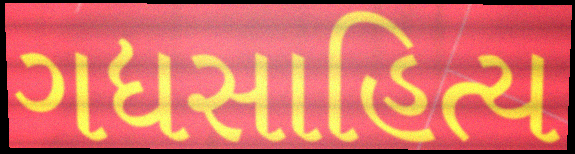
ગદ્યસાહિત્ય